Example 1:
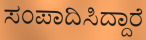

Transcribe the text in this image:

ಸಂಪಾದಿಸಿದ್ದಾರೆ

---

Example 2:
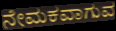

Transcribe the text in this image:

ನೇಮಕವಾಗುವ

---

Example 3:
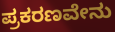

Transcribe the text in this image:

ಪ್ರಕರಣವೇನು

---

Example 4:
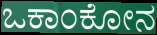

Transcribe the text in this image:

ಒಕಾಂಕೋನ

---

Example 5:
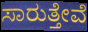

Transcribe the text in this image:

ಸಾರುತ್ತೇವೆ